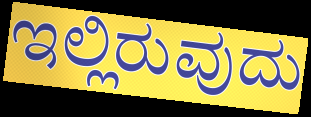
ಇಲ್ಲಿರುವುದು